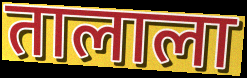
तालाला